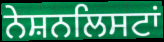
ਨੇਸ਼ਨਲਿਸਟਾਂ